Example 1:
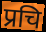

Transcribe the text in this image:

प्रचि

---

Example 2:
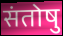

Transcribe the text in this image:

संतोषु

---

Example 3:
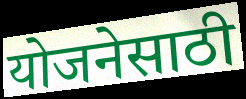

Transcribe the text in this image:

योजनेसाठी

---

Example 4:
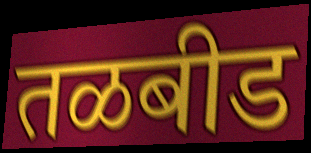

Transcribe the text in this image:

तळबीड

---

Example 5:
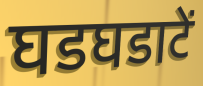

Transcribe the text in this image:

घडघडाटें